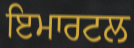
ਇਮਾਰਟਲ